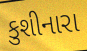
કુશીનારા